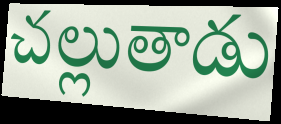
చల్లుతాడు